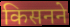
किसनने